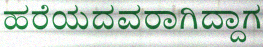
ಹರೆಯದವರಾಗಿದ್ದಾಗ